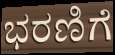
ಭರಣಿಗೆ